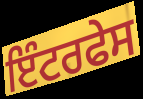
ਇੰਟਰਫੇਸ